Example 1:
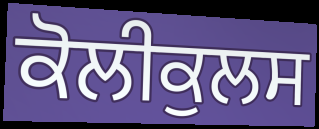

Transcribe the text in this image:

ਕੋਲੀਕੁਲਸ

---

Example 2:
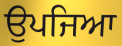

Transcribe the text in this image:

ਉਪਜਿਆ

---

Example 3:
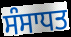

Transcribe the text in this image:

ਸੰਸਾਧਤ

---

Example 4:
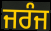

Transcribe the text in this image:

ਜਰੰਜ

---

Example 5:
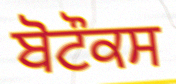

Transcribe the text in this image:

ਬੋਟੌਕਸ